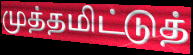
முத்தமிட்டுத்